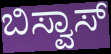
ಬಿಸ್ವಾಸ್